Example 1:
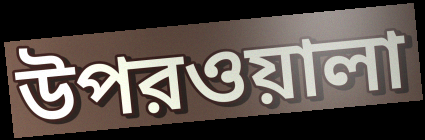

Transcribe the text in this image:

উপরওয়ালা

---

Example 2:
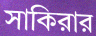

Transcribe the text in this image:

সাকিরার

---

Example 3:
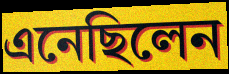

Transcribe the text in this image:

এনেছিলেন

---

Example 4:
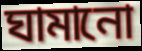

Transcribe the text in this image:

ঘামানো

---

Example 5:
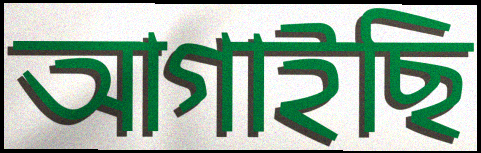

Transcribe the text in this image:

আগাইছি